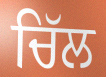
ਚਿੱਲ